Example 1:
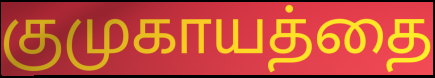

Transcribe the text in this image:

குமுகாயத்தை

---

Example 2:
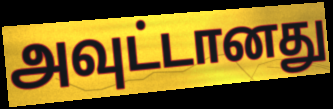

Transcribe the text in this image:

அவுட்டானது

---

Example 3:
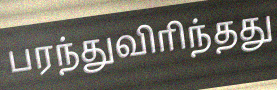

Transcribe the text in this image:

பரந்துவிரிந்தது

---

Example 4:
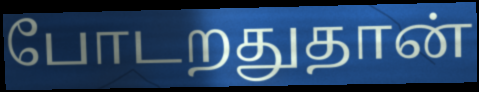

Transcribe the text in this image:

போடறதுதான்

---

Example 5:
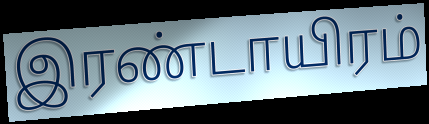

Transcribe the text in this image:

இரண்டாயிரம்